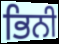
ਭਿਨੀ